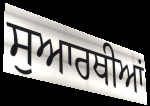
ਸੁਆਰਥੀਆਂ